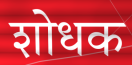
शोधक